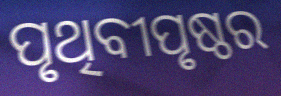
ପୃଥିବୀପୃଷ୍ଠର